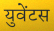
युवेंटस